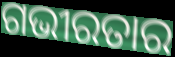
ଗଭୀରତାର